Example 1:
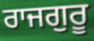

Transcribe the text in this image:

ਰਾਜਗੁਰੂ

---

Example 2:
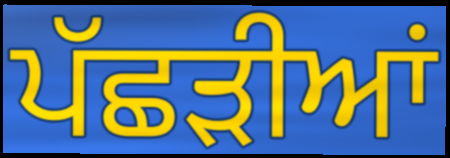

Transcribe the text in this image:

ਪੱਛੜੀਆਂ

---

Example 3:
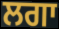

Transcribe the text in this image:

ਲਗਾ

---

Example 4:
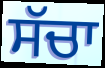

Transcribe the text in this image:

ਸੱਚਾ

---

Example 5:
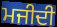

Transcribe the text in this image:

ਮਜੀਦੀ